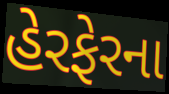
હેરફેરના